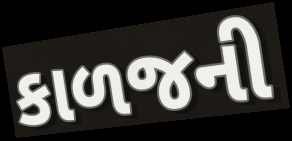
કાળજની